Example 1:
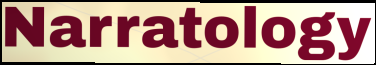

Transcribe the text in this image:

Narratology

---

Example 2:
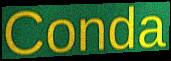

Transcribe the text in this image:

Conda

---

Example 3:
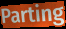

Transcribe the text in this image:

Parting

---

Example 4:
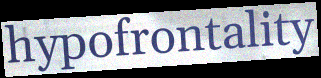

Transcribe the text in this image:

hypofrontality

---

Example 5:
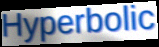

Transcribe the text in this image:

Hyperbolic